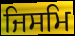
ਜਿਸਮਿ